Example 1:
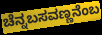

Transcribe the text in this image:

ಚೆನ್ನಬಸವಣ್ಣನೆಂಬ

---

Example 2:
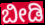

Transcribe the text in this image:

ಬೀಡಿ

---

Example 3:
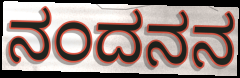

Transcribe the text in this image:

ನಂದನನ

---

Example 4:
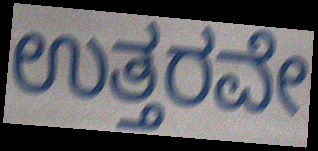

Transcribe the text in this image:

ಉತ್ತರವೇ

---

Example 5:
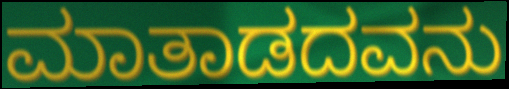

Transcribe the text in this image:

ಮಾತಾಡದವನು